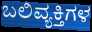
ಬಲಿವ್ಯಕ್ತಿಗಳ